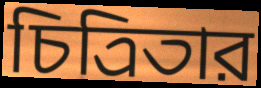
চিত্রিতার